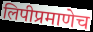
लिपीप्रमाणेच